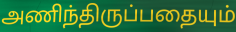
அணிந்திருப்பதையும்